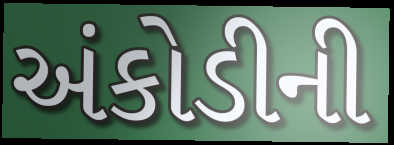
અંકોડીની